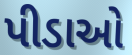
પીડાઓ